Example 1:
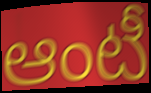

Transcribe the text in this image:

ఆంటీ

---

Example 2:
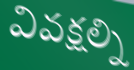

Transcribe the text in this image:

వివక్షల్ని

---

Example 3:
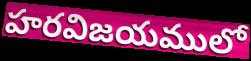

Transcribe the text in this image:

హరవిజయములో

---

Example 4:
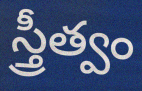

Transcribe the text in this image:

స్త్రీత్వం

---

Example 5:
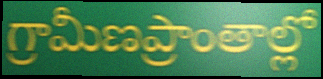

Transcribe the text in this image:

గ్రామీణప్రాంతాల్లో